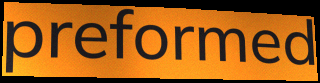
preformed